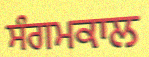
ਸੰਗਮਕਾਲ